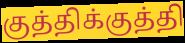
குத்திக்குத்தி